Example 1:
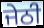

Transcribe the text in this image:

ਜੇਠੀ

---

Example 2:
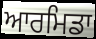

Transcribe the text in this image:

ਆਰਮਿਡਾ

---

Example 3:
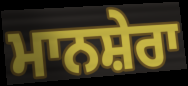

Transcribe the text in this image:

ਮਾਨਸ਼ੇਰਾ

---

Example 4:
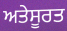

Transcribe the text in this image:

ਅਤੇਸੂਰਤ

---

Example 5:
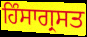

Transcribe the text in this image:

ਹਿੰਸਾਗ੍ਰਸਤ